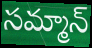
సమ్మాన్